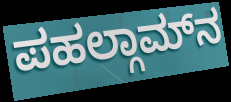
ಪಹಲ್ಗಾಮ್‌ನ